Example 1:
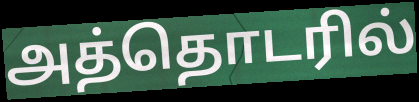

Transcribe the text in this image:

அத்தொடரில்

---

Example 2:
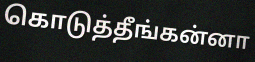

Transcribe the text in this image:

கொடுத்தீங்கன்னா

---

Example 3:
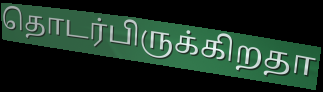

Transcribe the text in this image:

தொடர்பிருக்கிறதா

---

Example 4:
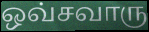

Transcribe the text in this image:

ஒவ்சவாரு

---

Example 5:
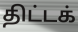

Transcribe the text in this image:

திட்டக்